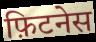
फ़िटनेस